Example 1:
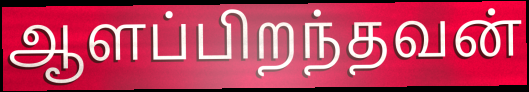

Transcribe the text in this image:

ஆளப்பிறந்தவன்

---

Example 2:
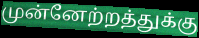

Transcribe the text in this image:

முன்னேற்றத்துக்கு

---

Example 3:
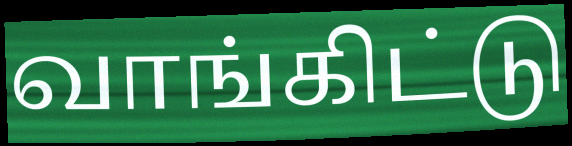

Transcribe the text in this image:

வாங்கிட்டு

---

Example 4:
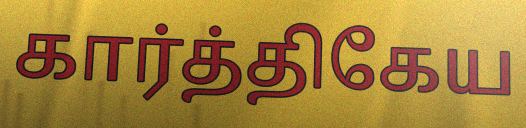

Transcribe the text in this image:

கார்த்திகேய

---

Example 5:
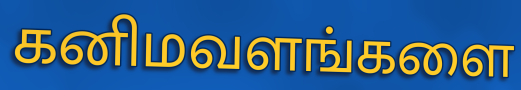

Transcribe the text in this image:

கனிமவளங்களை